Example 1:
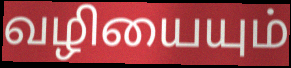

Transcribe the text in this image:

வழியையும்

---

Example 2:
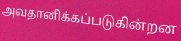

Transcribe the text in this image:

அவதானிக்கப்படுகின்றன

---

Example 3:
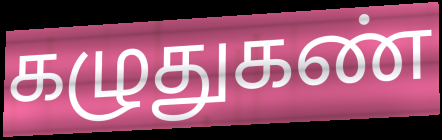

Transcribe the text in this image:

கழுதுகண்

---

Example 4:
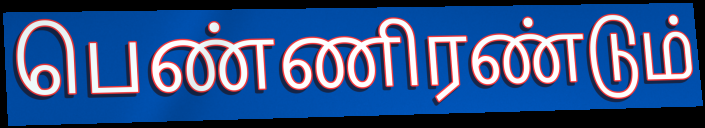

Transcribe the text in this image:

பெண்ணிரண்டும்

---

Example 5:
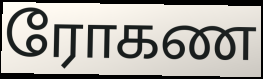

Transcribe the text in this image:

ரோகண